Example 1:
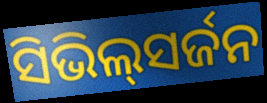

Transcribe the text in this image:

ସିଭିଲ୍‌ସର୍ଜନ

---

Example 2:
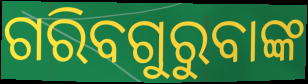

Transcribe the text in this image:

ଗରିବଗୁରୁବାଙ୍କ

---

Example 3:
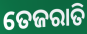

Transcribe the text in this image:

ତେଜରାତି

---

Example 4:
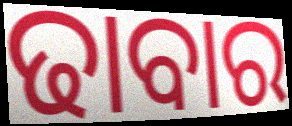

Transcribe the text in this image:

ଢାବାର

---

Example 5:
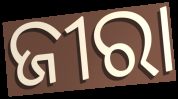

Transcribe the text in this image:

ଜୀରା